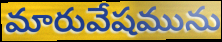
మారువేషమును